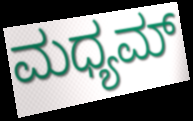
ಮಧ್ಯಮ್